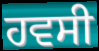
ਹਵਸੀ